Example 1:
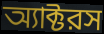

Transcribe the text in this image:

অ্যাক্টরস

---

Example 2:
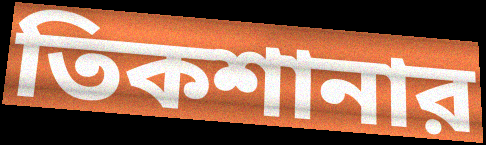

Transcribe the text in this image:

তিকশানার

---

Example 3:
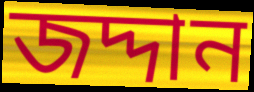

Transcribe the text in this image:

জদ্দান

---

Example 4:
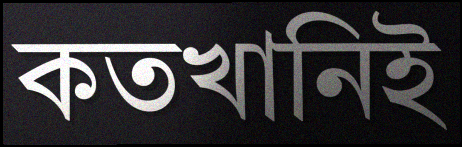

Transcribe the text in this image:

কতখানিই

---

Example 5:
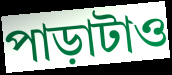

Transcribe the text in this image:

পাড়াটাও